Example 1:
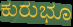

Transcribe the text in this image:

ಕುರುಭೂ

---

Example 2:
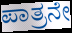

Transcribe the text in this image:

ಪಾತ್ರನೇ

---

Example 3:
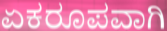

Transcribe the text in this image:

ಏಕರೂಪವಾಗಿ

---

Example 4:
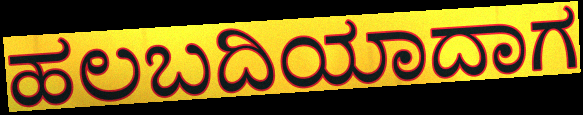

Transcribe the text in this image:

ಹಲಬದಿಯಾದಾಗ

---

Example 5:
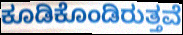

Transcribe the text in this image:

ಕೂಡಿಕೊಂಡಿರುತ್ತವೆ